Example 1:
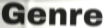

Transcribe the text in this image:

Genre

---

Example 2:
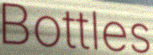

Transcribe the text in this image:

Bottles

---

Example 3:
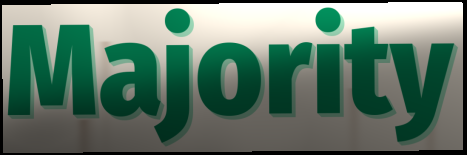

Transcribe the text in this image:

Majority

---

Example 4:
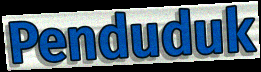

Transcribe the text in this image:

Penduduk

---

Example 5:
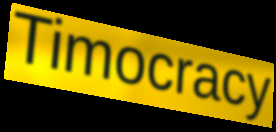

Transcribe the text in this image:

Timocracy